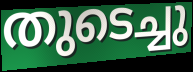
തുടെച്ചു